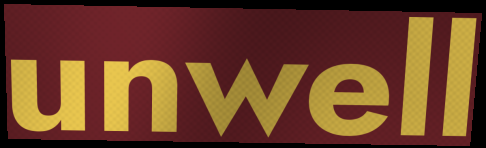
unwell